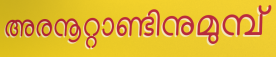
അരനൂറ്റാണ്ടിനുമുമ്പ്